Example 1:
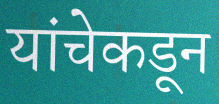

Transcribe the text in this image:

यांचेकडून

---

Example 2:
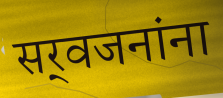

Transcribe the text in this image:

सर्वजनांना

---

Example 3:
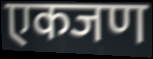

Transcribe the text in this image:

एकजण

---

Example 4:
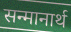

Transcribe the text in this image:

सन्मानार्थ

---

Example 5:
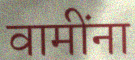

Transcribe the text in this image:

वामींना